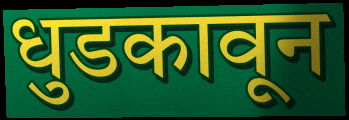
धुडकावून